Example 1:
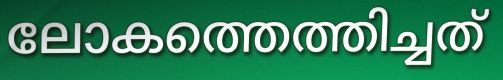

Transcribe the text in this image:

ലോകത്തെത്തിച്ചത്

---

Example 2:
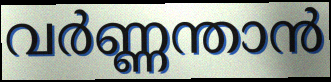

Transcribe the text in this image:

വർണ്ണന്താൻ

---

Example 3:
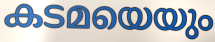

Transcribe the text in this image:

കടമയെയും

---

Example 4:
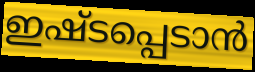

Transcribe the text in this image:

ഇഷ്ടപ്പെടാൻ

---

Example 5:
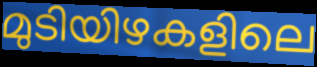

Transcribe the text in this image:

മുടിയിഴകളിലെ